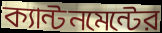
ক্যান্টনমেন্টের